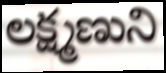
లక్ష్మణుని